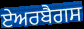
ਏਅਰਬੈਗਸ